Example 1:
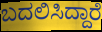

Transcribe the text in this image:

ಬದಲಿಸಿದ್ದಾರೆ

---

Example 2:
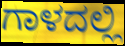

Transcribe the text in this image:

ಗಾಳದಲ್ಲಿ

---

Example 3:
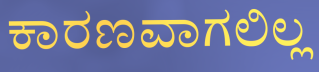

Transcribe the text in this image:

ಕಾರಣವಾಗಲಿಲ್ಲ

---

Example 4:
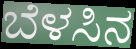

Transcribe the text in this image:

ಬೆಳಸಿನ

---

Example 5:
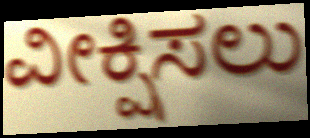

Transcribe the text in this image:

ವೀಕ್ಷಿಸಲು